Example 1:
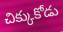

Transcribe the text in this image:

చిక్కుకోడు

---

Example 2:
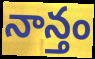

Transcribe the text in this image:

నాన్తం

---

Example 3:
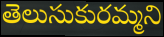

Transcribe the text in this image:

తెలుసుకురమ్మని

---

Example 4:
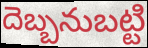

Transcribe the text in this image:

దెబ్బనుబట్టి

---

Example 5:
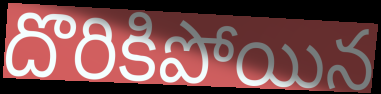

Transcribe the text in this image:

దొరికిపోయిన